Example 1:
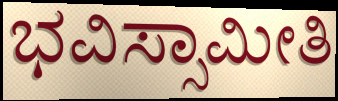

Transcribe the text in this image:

ಭವಿಸ್ಸಾಮೀತಿ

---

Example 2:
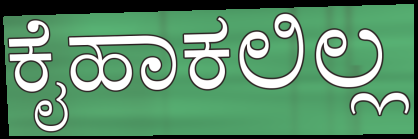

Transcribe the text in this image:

ಕೈಹಾಕಲಿಲ್ಲ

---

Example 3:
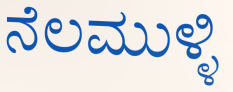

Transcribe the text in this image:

ನೆಲಮುಳ್ಳಿ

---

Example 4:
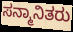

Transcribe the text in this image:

ಸನ್ಮಾನಿತರು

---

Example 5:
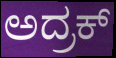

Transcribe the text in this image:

ಅದ್ರಕ್